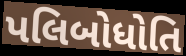
પલિબોધોતિ